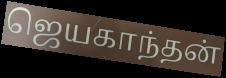
ஜெயகாந்தன்